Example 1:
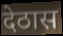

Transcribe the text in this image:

देठास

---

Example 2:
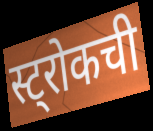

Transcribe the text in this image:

स्ट्रोकची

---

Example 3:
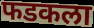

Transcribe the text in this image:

फडकला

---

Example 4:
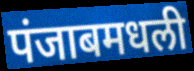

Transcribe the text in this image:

पंजाबमधली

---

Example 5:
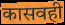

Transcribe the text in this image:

कासवही